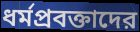
ধর্মপ্রবক্তাদের